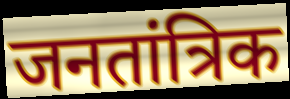
जनतांत्रिक